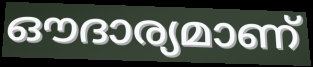
ഔദാര്യമാണ്